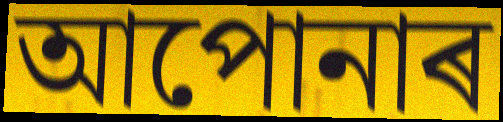
আপোনাৰ